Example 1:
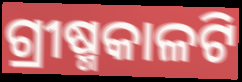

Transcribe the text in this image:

ଗ୍ରୀଷ୍ମକାଳଟି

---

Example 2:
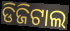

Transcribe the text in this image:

ଡିଜିଟାଲ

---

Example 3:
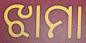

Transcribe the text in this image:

ଝାମା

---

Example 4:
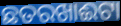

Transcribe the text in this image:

ଛତରଖାଈଟା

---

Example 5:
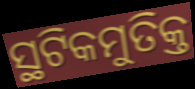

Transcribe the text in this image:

ସ୍ଥଟିକମୁତିକ୍ତ